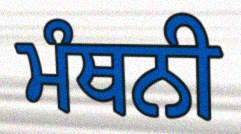
ਮੰਥਨੀ